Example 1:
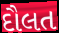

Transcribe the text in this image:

દૌલત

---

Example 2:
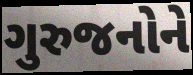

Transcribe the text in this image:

ગુરુજનોને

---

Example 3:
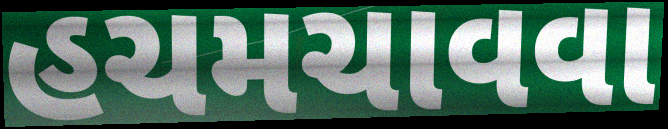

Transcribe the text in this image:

હચમચાવવા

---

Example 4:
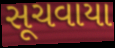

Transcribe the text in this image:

સૂચવાયા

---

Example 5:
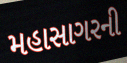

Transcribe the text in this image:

મહાસાગરની